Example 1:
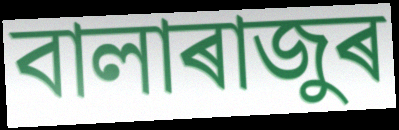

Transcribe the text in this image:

বালাৰাজুৰ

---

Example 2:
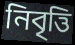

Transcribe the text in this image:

নিবৃত্তি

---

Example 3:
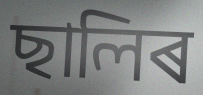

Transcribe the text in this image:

ছালিৰ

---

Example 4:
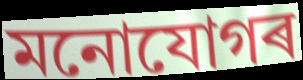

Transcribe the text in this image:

মনোযোগৰ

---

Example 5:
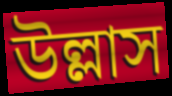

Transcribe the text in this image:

উল্লাস